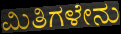
ಮಿತಿಗಳೇನು